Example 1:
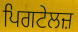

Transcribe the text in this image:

ਪਿਗਟੇਲਜ਼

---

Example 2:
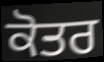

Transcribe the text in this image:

ਕੋਤਰ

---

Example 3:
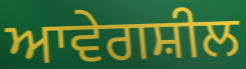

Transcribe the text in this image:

ਆਵੇਗਸ਼ੀਲ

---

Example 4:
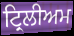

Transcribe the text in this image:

ਟ੍ਰਿਲੀਅਮ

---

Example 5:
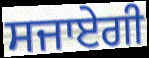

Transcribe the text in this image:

ਸਜਾਏਗੀ